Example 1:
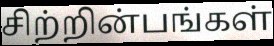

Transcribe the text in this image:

சிற்றின்பங்கள்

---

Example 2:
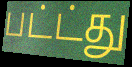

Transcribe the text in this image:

பட்ட்து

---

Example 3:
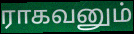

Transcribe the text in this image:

ராகவனும்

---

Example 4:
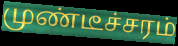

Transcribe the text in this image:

முண்டீச்சரம்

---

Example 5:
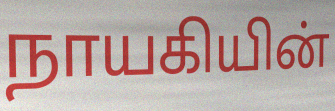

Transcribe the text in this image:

நாயகியின்